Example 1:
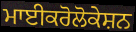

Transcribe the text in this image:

ਮਾਈਕਰੋਲੋਕੇਸ਼ਨ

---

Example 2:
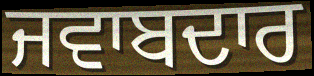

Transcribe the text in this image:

ਜਵਾਬਦਾਰ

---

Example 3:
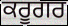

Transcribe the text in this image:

ਕਰੂਗਰ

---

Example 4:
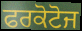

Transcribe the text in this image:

ਫਰਕੋਟੋਜ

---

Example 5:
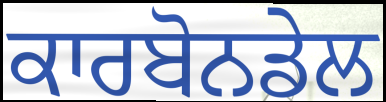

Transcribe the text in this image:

ਕਾਰਬੋਨਡੇਲ